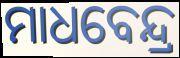
ମାଧବେନ୍ଦ୍ର